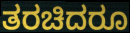
ತರಚಿದರೂ